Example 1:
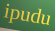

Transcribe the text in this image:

ipudu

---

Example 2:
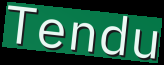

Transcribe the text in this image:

Tendu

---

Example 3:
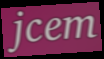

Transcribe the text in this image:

jcem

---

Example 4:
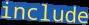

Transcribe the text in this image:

include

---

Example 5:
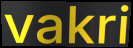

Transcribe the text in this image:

vakri